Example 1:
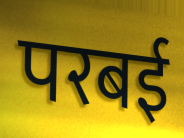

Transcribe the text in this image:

परबई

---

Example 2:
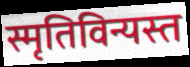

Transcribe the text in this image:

स्मृतिविन्यस्त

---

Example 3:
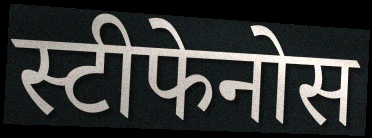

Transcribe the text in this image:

स्टीफेनोस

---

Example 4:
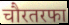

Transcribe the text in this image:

चौरतरफा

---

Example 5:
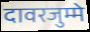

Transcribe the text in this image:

दावरजुम्मे